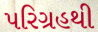
પરિગ્રહથી